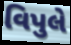
વિપુલે